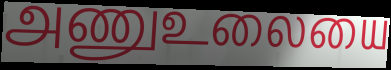
அணுஉலையை